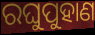
ରଘୁପୁହାଣ